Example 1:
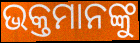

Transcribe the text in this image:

ଭକ୍ତମାନଙ୍କୁ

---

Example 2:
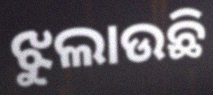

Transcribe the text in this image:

ଝୁଲାଉଛି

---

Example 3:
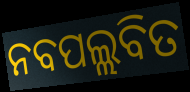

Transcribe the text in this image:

ନବପଲ୍ଲବିତ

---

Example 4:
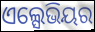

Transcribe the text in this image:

ଏଲ୍ସେଭିୟର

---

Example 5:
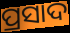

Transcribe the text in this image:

ପ୍ରସାଦ